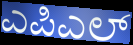
ಎಪಿಎಲ್